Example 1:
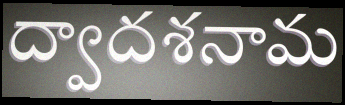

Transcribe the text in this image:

ద్వాదశనామ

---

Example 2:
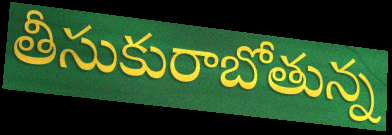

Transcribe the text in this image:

తీసుకురాబోతున్న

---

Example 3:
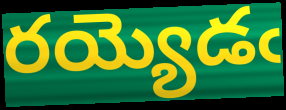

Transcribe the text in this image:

రయ్యెడఁ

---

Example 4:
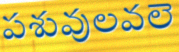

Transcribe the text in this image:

పశువులవలె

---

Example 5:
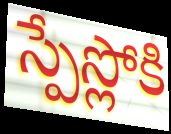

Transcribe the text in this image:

స్పేస్లోకి